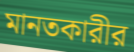
মানতকারীর